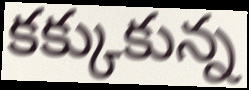
కక్కుకున్న